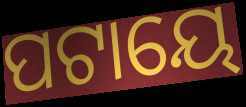
ପଟାୟେ